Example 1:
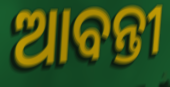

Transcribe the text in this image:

ଆବନ୍ତୀ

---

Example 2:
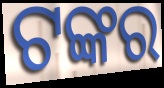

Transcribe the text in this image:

ଟଙ୍କର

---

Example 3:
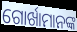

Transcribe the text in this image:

ଗୋର୍ଖାମାନଙ୍କ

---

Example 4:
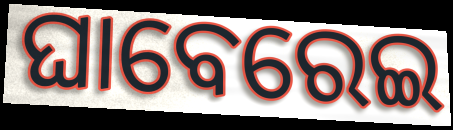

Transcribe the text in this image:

ଘାବେରେଇ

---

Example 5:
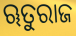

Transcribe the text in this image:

ୠତୁରାଜ